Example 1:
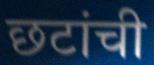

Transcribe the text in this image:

छटांची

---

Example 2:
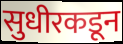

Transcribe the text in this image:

सुधीरकडून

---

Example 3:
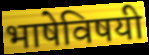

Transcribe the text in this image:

भाषेविषयी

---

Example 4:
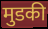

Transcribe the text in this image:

मुडकी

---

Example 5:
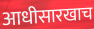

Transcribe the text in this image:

आधीसारखाच